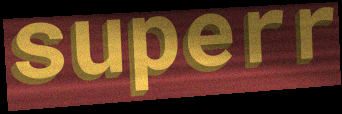
superr